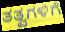
ತತ್ವಗಳಿಗೆ